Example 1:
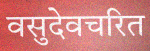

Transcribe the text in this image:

वसुदेवचरित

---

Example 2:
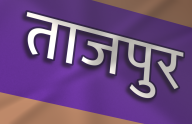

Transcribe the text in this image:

ताजपुर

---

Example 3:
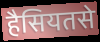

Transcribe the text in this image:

हैसियतसे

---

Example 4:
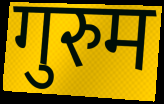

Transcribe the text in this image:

गुरुम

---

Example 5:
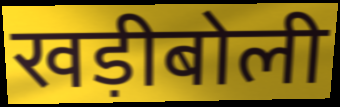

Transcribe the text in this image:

खड़ीबोली